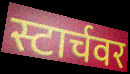
स्टार्चवर